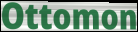
Ottomon